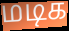
மடிக